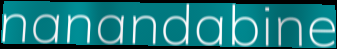
nanandabine